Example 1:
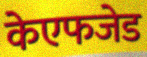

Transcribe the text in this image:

केएफजेड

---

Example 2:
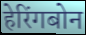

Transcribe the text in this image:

हेरिंगबोन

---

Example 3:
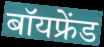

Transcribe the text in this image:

बॉयफ्रेंड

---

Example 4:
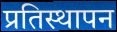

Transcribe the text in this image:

प्रतिस्थापन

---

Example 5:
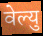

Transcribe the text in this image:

वेल्यु